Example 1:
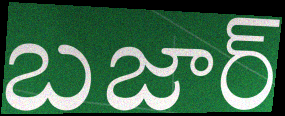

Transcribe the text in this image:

బజార్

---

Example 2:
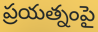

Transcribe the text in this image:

ప్రయత్నంపై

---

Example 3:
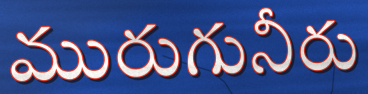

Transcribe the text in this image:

మురుగునీరు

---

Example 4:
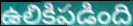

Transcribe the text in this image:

ఉలికిపడింది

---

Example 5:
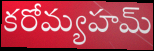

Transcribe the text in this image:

కరోమ్యహమ్